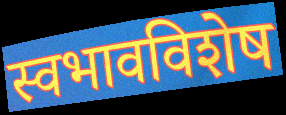
स्वभावविशेष